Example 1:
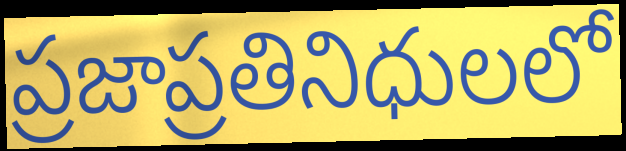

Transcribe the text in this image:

ప్రజాప్రతినిధులలో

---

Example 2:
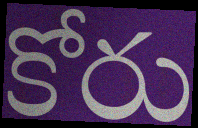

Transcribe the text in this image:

కోరు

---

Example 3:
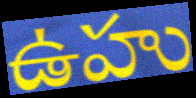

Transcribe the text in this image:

ఉహు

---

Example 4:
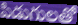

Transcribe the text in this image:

పిడుగులతో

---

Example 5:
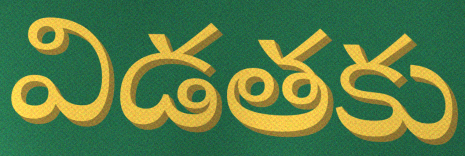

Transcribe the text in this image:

విడతకు